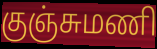
குஞ்சுமணி